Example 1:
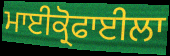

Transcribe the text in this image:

ਮਾਈਕ੍ਰੋਫਾਈਲਾ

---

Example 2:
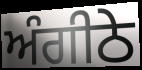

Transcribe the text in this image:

ਅੰਗੀਠੇ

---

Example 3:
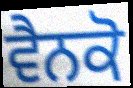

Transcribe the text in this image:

ਵੈਨਕੋ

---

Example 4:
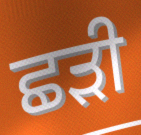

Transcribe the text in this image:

ਛੜੀ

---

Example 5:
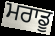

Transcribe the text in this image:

ਮਰਾਡੂ